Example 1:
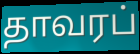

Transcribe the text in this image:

தாவரப்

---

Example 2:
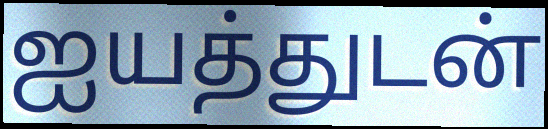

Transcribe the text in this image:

ஐயத்துடன்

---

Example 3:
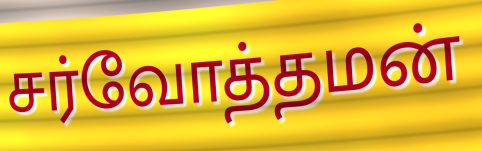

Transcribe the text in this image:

சர்வோத்தமன்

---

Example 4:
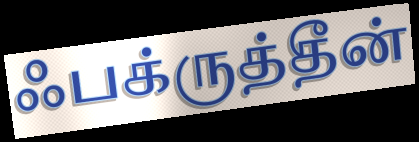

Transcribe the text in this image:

ஃபக்ருத்தீன்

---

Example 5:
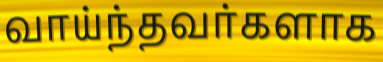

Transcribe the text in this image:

வாய்ந்தவர்களாக